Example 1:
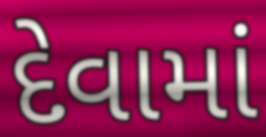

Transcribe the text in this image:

દેવામાં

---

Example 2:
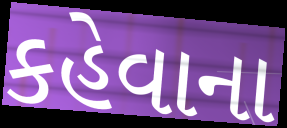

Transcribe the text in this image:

કહેવાના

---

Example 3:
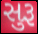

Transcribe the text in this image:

સુરૂ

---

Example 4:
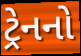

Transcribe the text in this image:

ટ્રેનનો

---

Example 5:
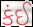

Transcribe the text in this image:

કંઈ